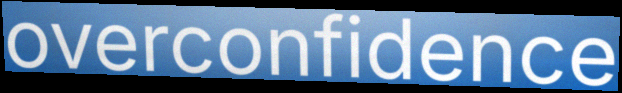
overconfidence